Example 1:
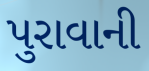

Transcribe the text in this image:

પુરાવાની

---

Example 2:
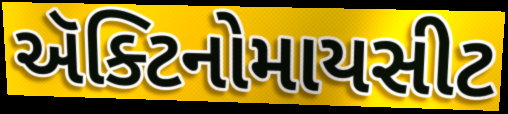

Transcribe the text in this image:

ઍક્ટિનોમાયસીટ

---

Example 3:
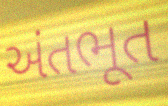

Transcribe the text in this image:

અંતભૂત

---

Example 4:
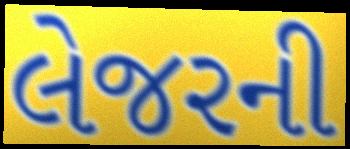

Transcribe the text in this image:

લેજરની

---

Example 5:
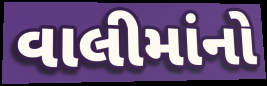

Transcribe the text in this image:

વાલીમાંનો